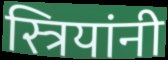
स्त्रियांनी